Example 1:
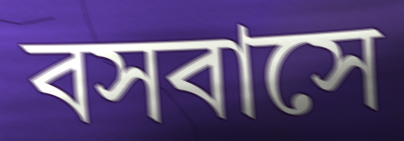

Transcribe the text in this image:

বসবাসে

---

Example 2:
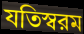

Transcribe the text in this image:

যতিস্বরম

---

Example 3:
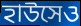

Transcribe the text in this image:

হাউসেও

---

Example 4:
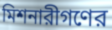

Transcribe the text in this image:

মিশনারীগণের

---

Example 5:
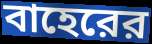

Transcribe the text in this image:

বাহেরের